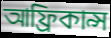
আফ্ৰিকান্স